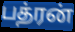
பத்ரன்